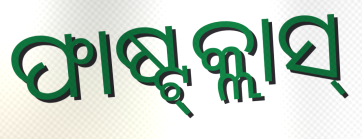
ଫାଷ୍ଟ୍‍କ୍ଲାସ୍